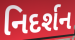
નિદર્શન